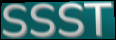
SSST